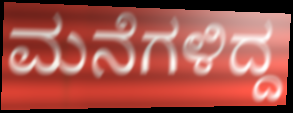
ಮನೆಗಳಿದ್ದ